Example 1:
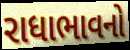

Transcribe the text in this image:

રાધાભાવનો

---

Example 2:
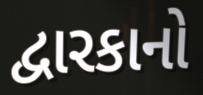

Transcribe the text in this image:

દ્વારકાનો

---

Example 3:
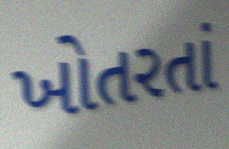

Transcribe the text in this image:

ખોતરતાં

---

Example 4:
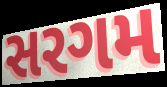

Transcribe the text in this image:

સરગમ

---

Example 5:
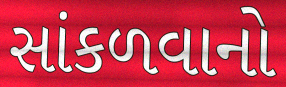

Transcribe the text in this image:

સાંકળવાનો